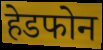
हेडफोन